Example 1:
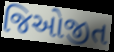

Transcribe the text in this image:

જિઓજીત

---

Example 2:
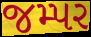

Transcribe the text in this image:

જમ્પર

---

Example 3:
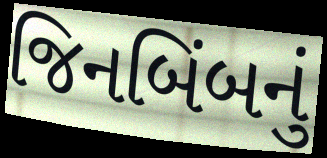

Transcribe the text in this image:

જિનબિંબનું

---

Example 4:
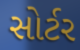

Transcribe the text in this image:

સોર્ટર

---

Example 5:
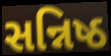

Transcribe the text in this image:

સન્નિષ્ઠ